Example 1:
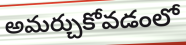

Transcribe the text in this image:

అమర్చుకోవడంలో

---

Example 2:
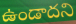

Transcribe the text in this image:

ఉండాదని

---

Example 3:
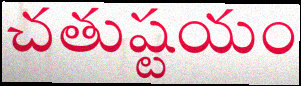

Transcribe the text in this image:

చతుష్టయం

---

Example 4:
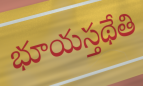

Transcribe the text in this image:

భూయస్తథేతి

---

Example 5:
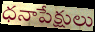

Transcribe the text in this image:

ధనాపేక్షులు